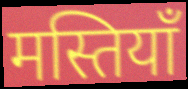
मस्तियाँ